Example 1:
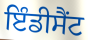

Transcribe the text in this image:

ਇੰਡੀਸੈਂਟ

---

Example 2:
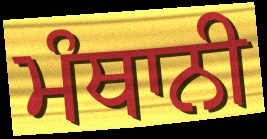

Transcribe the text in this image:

ਮੰਥਾਨੀ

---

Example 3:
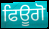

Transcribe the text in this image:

ਫਿਊਗੋ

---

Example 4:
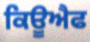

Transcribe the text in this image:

ਕਿਊਐਫ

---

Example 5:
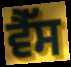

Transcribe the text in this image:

ਵੈੱਸ